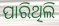
ପାରିଥିଲି